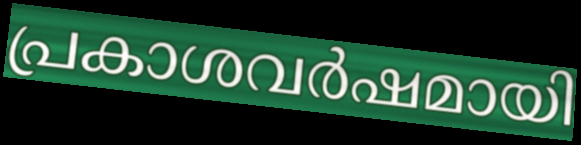
പ്രകാശവർഷമായി